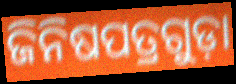
ଜିନିଷପତ୍ରଗୁଡ଼ା